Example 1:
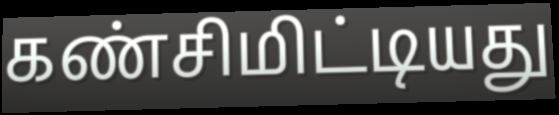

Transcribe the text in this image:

கண்சிமிட்டியது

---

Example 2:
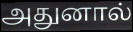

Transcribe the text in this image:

அதுனால்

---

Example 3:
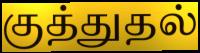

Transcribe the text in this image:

குத்துதல்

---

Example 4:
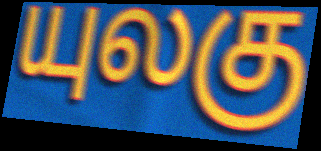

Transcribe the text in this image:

யுலகு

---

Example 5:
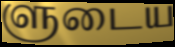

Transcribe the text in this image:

ளுடைய